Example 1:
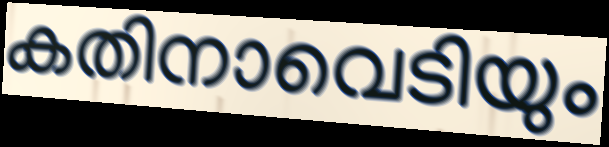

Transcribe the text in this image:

കതിനാവെടിയും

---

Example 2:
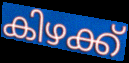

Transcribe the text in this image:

കിഴക്ക്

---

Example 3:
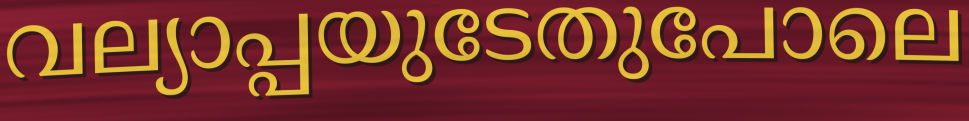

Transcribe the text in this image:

വല്യാപ്പയുടേതുപോലെ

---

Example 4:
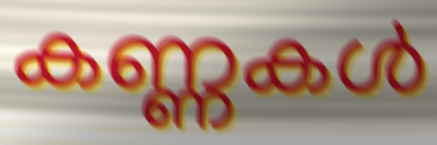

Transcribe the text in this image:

കണ്ണകൾ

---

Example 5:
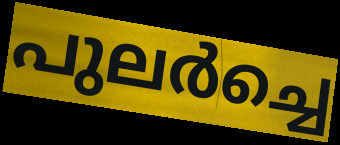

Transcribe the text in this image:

പുലർച്ചെ